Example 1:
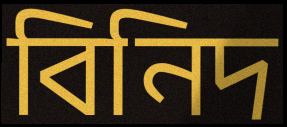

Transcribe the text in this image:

বিনিদ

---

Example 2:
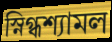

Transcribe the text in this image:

স্নিগ্ধশ্যামল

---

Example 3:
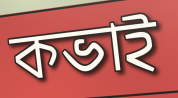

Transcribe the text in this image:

কভাই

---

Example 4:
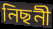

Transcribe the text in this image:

নিছনী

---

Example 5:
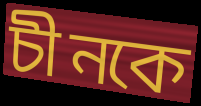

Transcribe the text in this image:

চীনকে